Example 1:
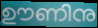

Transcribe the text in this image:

ഊണിനു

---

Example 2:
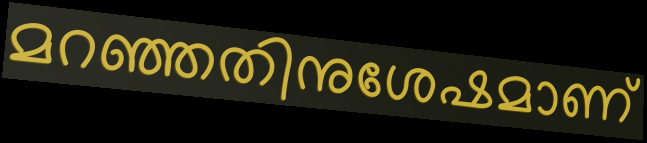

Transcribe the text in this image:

മറഞ്ഞതിനുശേഷമാണ്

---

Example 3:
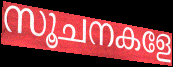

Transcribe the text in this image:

സൂചനകളേ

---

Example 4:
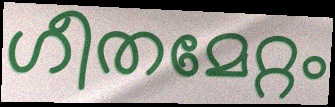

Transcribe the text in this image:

ഗീതമേറ്റം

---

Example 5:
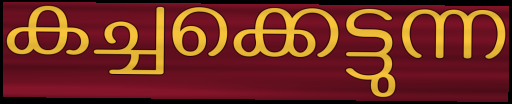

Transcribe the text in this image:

കച്ചക്കെട്ടുന്ന